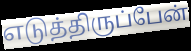
எடுத்திருப்பேன்